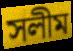
সলীম